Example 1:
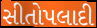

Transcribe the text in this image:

સીતોપલાદી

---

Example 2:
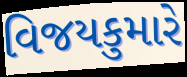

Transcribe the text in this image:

વિજયકુમારે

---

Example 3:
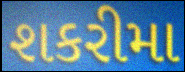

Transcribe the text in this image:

શકરીમા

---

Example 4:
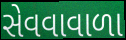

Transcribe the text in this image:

સેવવાવાળા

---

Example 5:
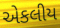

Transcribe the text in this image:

એકલીય